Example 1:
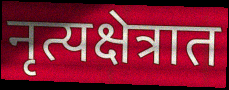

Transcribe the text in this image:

नृत्यक्षेत्रात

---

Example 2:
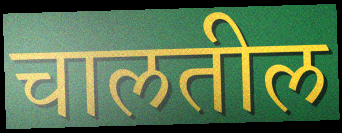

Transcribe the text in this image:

चालतील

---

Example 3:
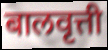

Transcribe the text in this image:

बालवृत्ती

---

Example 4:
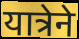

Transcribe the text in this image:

यात्रेने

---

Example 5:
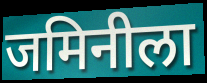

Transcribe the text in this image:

जमिनीला